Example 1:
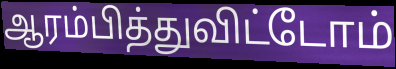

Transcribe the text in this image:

ஆரம்பித்துவிட்டோம்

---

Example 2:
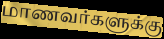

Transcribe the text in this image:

மாணவர்களுக்கு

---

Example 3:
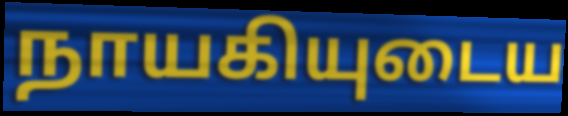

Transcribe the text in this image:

நாயகியுடைய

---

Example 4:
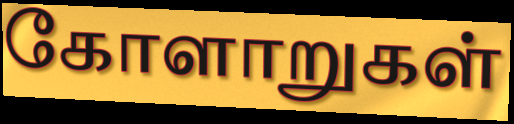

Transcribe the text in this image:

கோளாறுகள்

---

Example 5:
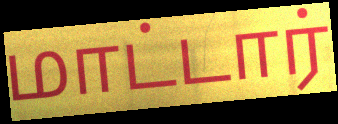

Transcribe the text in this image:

மாட்டார்